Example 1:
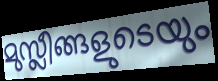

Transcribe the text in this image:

മുസ്ലീങ്ങളുടെയും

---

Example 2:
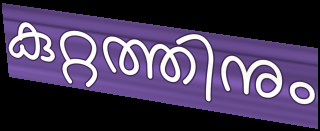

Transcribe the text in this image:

കുറ്റത്തിനും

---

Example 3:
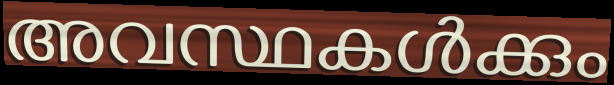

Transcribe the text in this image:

അവസ്ഥകൾക്കും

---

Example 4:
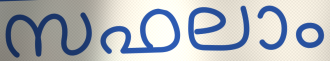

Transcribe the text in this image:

സഫലാം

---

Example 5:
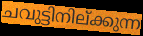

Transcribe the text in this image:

ചവുട്ടിനില്ക്കുന്ന